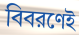
বিবরণেই